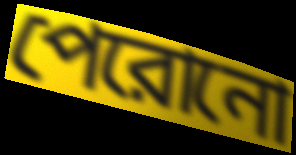
পেরোনো